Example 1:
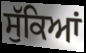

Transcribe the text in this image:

ਸੁੱਕਿਆਂ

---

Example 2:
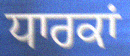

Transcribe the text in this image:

ਧਾਰਕਾਂ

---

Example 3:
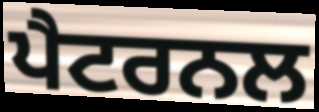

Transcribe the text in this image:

ਪੈਟਰਨਲ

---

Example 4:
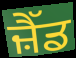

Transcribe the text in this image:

ਜ਼ੈੱਡ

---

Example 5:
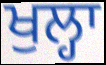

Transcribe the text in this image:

ਖੁਲ੍ਹਾ